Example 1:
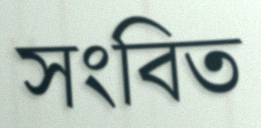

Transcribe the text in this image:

সংবিত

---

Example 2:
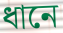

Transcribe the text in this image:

ধানে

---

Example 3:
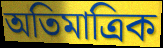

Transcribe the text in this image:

অতিমাত্রিক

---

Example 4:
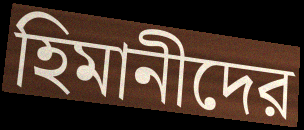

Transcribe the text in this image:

হিমানীদের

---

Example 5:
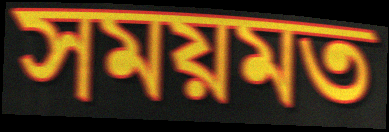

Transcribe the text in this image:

সময়মত